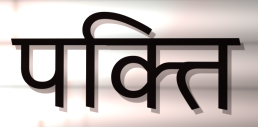
पक्ति